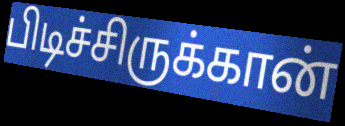
பிடிச்சிருக்கான்